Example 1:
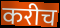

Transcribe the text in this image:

करीच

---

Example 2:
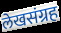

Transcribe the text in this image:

लेखसंग्रह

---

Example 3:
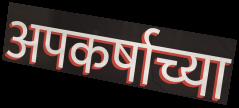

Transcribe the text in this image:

अपकर्षाच्या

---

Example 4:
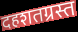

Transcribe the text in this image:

दहशतग्रस्त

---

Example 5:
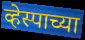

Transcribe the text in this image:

व्हेस्पाच्या